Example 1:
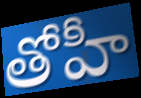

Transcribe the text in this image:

తోహీ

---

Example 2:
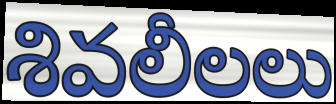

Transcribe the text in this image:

శివలీలలు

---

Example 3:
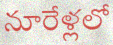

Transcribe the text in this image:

నూరేళ్లలో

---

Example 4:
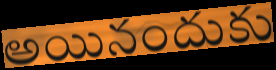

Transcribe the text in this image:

అయినందుకు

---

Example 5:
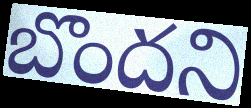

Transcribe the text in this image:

బొందని